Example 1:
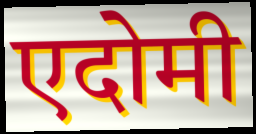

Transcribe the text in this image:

एदोमी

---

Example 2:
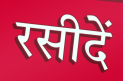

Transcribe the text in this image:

रसीदें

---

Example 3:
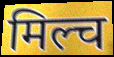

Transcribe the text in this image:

मिल्च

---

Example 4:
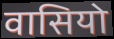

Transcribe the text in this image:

वासियो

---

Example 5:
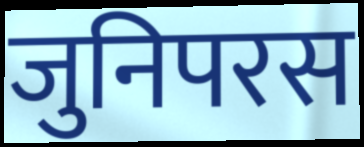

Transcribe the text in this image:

जुनिपरस